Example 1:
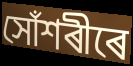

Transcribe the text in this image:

সোঁশৰীৰে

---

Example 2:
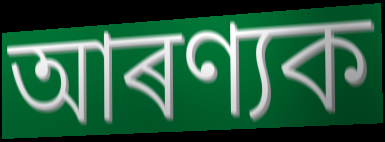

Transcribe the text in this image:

আৰণ্যক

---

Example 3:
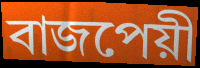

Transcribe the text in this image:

বাজপেয়ী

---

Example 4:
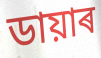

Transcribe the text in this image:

ডায়াৰ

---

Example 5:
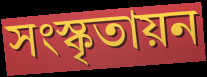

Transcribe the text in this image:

সংস্কৃতায়ন